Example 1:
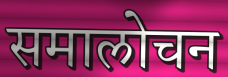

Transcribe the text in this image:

समालोचन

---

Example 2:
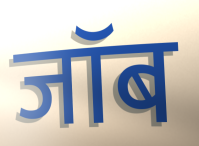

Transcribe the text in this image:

जॉब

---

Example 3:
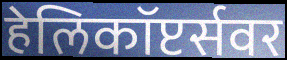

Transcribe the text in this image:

हेलिकॉप्टर्सवर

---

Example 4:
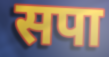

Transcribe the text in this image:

सपा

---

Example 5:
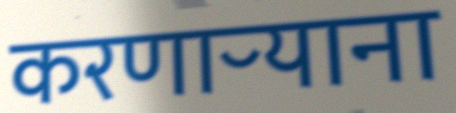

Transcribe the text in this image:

करणाऱ्याना